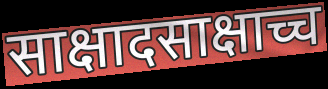
साक्षादसाक्षाच्च